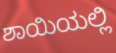
ಶಾಯಿಯಲ್ಲಿ